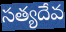
సత్యదేవ